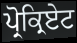
ਪ੍ਰੋਕ੍ਰਿਏਟ